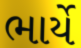
ભાર્યે